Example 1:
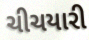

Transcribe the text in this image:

ચીચયારી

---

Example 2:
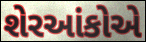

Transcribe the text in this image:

શેરઆંકોએ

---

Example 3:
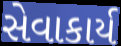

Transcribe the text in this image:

સેવાકાર્ય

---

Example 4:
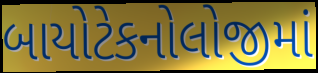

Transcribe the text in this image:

બાયોટેકનોલોજીમાં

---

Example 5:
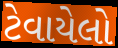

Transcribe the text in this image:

ટેવાયેલો